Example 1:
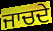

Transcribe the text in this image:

ਜਾਚਦੇ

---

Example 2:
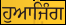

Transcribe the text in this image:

ਹੁਆਜਿੰਗ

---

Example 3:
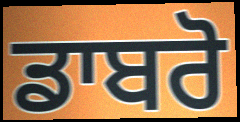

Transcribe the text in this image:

ਡਾਬਰੋ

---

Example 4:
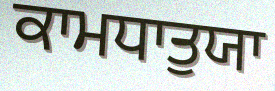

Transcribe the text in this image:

ਕਾਮਧਾਤੁਯਾ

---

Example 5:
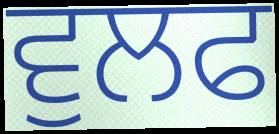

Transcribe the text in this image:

ਵੁਲਫ